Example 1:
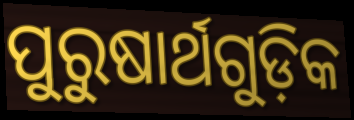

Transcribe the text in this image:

ପୁରୁଷାର୍ଥଗୁଡ଼ିକ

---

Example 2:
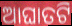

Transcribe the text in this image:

ଆଘାତଟି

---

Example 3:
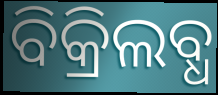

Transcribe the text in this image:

ବିକ୍ରିଲବ୍ଧ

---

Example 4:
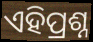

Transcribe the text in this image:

ଏହିପ୍ରଶ୍ନ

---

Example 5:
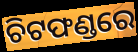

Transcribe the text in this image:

ଚିଟଫଣ୍ଡରେ